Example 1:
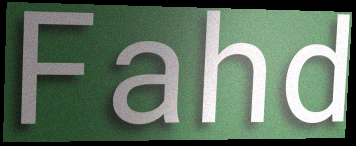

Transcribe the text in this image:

Fahd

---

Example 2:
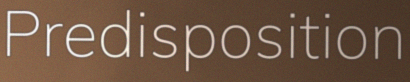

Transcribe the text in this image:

Predisposition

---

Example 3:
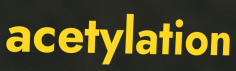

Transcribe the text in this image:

acetylation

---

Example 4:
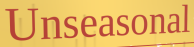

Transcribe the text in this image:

Unseasonal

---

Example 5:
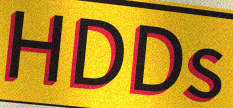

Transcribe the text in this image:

HDDs